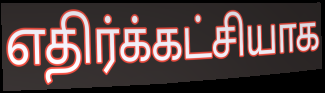
எதிர்க்கட்சியாக